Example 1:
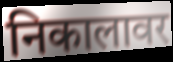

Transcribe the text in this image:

निकालावर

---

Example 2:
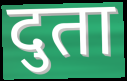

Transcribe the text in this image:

दुता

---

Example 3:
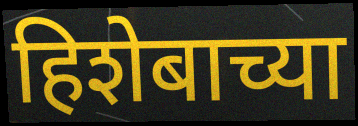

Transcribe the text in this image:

हिशेबाच्या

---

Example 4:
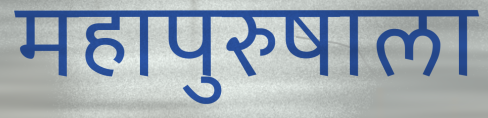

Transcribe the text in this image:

महापुरुषाला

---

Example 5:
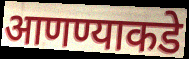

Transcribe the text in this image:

आणण्याकडे